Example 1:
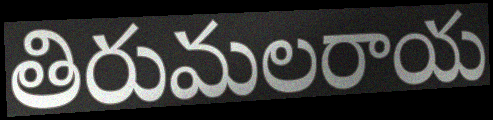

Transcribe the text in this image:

తిరుమలరాయ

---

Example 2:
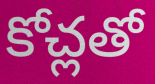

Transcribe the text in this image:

కోచ్లతో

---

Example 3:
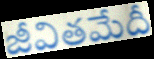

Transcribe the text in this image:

జీవితమేదీ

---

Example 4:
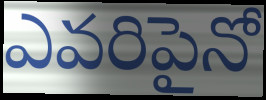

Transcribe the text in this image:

ఎవరిపైనో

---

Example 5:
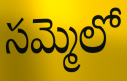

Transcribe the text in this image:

సమ్మెలో